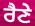
ਰੈਣੇ